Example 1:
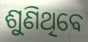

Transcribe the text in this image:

ଶୁଣିଥିବେ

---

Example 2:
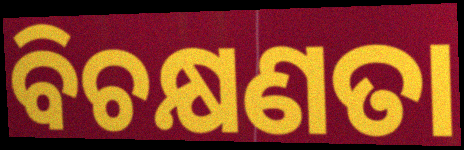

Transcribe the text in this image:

ବିଚକ୍ଷଣତା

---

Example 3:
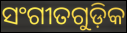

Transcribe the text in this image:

ସଂଗୀତଗୁଡ଼ିକ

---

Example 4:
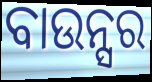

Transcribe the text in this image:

ବାଉନ୍ସର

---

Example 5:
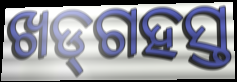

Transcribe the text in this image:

ଖଡ୍‌ଗହସ୍ତ